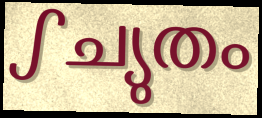
ഽച്യുതം